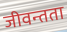
जीवन्तता